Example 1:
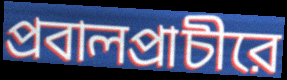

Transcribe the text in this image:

প্রবালপ্রাচীরে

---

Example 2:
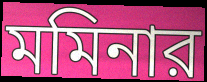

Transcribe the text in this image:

মমিনার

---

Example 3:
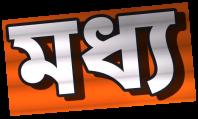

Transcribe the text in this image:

মধ্য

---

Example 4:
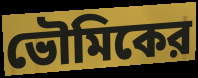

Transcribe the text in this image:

ভৌমিকের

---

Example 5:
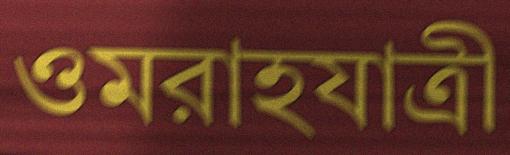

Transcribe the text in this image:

ওমরাহযাত্রী